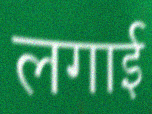
लगाई